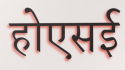
होएसई